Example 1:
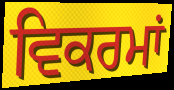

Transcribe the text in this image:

ਵਿਕਰਮਾਂ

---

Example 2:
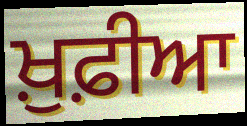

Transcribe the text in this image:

ਖ਼ੁਫ਼ੀਆ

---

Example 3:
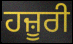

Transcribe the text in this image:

ਹਜ਼ੂਰੀ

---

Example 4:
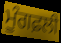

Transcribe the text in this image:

ਮੂੰਗਫ਼ਲੀ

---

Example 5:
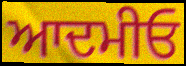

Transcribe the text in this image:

ਆਦਮੀਓ